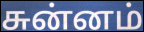
சுன்னம்